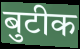
बुटीक